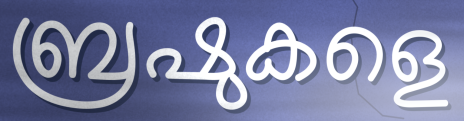
ബ്രഷുകളെ